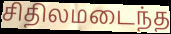
சிதிலமடைந்த